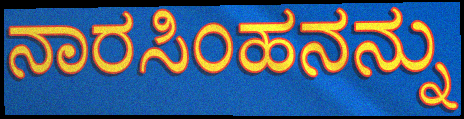
ನಾರಸಿಂಹನನ್ನು